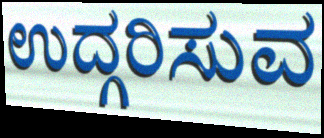
ಉದ್ಗರಿಸುವ